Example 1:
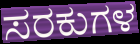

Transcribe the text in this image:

ಸರಕುಗಳ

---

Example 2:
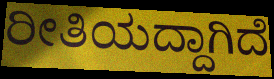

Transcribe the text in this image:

ರೀತಿಯದ್ದಾಗಿದೆ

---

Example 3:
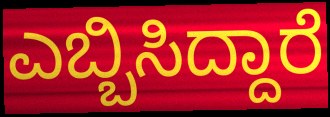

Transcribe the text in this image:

ಎಬ್ಬಿಸಿದ್ದಾರೆ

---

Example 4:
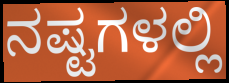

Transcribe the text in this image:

ನಷ್ಟಗಳಲ್ಲಿ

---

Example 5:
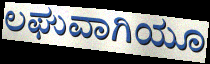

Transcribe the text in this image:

ಲಘುವಾಗಿಯೂ